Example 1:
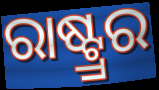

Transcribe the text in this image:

ରାଷ୍ଟ୍ର୍ରର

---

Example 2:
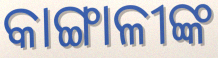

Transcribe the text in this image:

କାଙ୍ଗାଳୀଙ୍କ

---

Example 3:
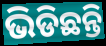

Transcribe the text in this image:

ଭିଡିଛନ୍ତି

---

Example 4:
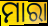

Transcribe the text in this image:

ମାରା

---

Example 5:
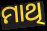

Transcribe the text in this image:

ମାଥି